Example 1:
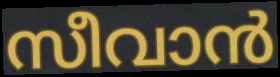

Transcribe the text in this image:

സീവാൻ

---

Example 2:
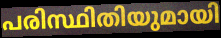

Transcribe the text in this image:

പരിസ്ഥിതിയുമായി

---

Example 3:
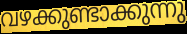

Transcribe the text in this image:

വഴക്കുണ്ടാക്കുന്നു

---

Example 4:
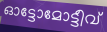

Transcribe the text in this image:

ഓട്ടോമോട്ടീവ്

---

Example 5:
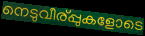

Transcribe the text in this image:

നെടുവീര്പ്പുകളോടെ